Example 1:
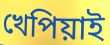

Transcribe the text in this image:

খেপিয়াই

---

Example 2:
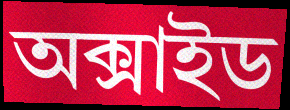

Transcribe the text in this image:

অক্সাইড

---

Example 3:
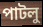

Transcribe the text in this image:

পাটলু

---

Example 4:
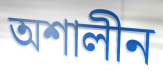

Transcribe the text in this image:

অশালীন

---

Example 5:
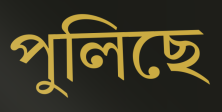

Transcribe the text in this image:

পুলিছে